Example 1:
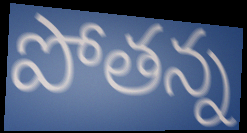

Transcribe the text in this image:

పోతన్న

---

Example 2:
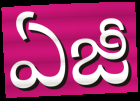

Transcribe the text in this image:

ఏజీ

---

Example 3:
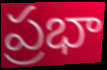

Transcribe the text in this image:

ప్రభా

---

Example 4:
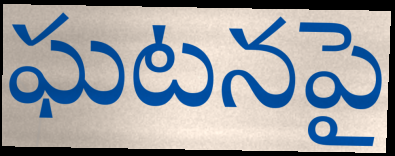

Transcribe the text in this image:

ఘటనపై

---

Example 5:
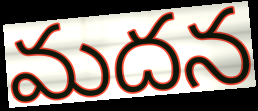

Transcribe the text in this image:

మదన